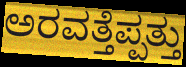
ಅರವತ್ತೆಪ್ಪತ್ತು